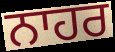
ਨਾਹਰ